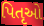
પિતૃઓ